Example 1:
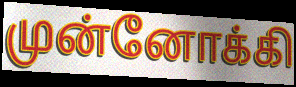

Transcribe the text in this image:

முன்னோக்கி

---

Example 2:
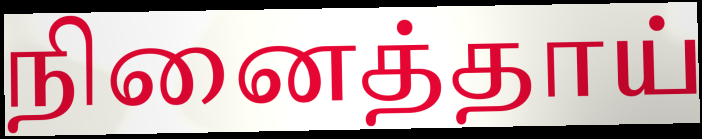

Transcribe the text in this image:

நினைத்தாய்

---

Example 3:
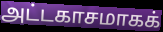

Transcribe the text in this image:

அட்டகாசமாகக்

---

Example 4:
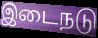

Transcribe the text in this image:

இடைநடு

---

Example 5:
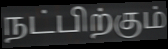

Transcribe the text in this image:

நட்பிற்கும்